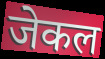
जेकल